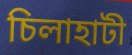
চিলাহাটী